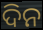
ଦିନ